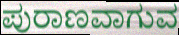
ಪುರಾಣವಾಗುವ